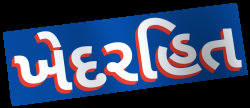
ખેદરહિત